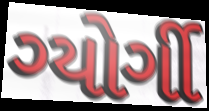
ગ્યોર્ગી